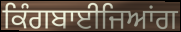
ਕਿੰਗਬਾਈਜਿਆਂਗ